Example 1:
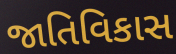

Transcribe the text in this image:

જાતિવિકાસ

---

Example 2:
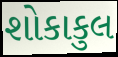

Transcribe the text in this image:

શોકાકુલ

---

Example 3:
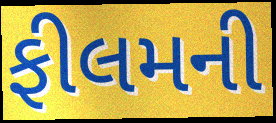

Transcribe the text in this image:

ફીલમની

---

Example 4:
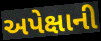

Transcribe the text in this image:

અપેક્ષાની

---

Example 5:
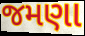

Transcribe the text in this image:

જમણા